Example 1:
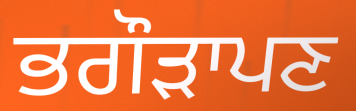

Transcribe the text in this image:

ਭਗੌੜਾਪਣ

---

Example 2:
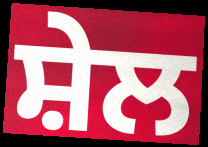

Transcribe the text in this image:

ਸ਼ੇਲ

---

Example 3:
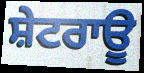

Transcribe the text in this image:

ਸ਼ੇਟਰਾਊ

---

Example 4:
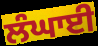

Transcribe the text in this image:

ਲੰਘਾਈ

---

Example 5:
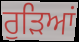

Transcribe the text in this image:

ਰੁੜਿਆਂ